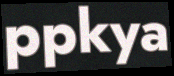
ppkya